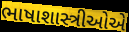
ભાષાશાસ્ત્રીઓએ